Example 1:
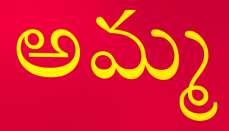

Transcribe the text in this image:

అమ్మ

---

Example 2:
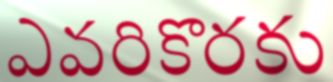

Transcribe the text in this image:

ఎవరికొరకు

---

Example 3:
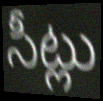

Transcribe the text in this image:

సీట్లు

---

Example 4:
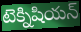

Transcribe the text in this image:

టెక్నిషియన్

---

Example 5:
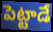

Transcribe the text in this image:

పెట్టాడే